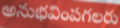
అనుభవింపగలరు